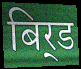
बिर्ड